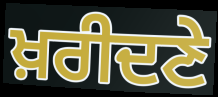
ਖ਼ਰੀਦਣੇ